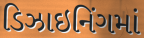
ડિઝાઇનિંગમાં